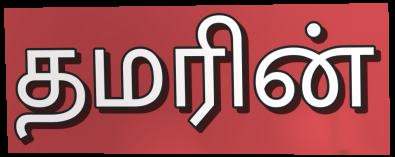
தமரின்